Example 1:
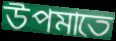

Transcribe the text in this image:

উপমাতে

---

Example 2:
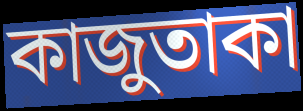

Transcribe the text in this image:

কাজুতাকা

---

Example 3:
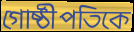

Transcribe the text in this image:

গোষ্ঠীপতিকে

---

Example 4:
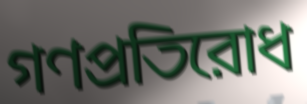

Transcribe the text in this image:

গণপ্রতিরোধ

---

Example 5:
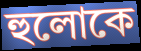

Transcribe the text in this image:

হুলোকে